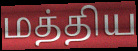
மத்திய